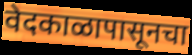
वेदकाळापासूनचा